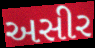
અસીર